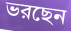
ভরছেন